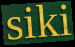
siki